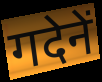
गदेनें